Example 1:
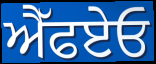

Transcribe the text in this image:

ਐੱਫਏਓ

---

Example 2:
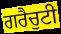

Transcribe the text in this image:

ਗਰੈਚੁਟੀ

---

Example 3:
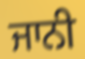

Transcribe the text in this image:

ਜਾਨੀ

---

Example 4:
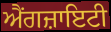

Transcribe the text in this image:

ਐਂਗਜ਼ਾਇਟੀ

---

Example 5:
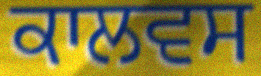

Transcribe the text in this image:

ਕਾਲਵਸ